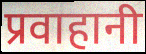
प्रवाहानी